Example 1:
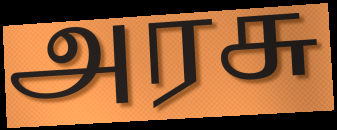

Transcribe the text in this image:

அரசு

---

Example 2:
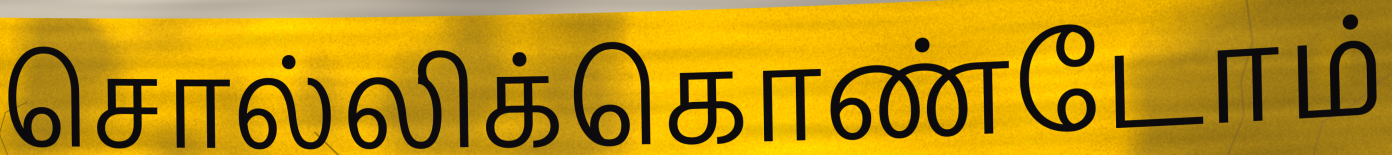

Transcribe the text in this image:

சொல்லிக்கொண்டோம்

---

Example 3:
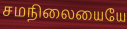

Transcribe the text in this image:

சமநிலையையே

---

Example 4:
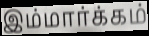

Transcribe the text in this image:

இம்மார்க்கம்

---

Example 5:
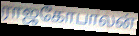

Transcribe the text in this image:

ராஜகோபாலன்